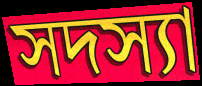
সদস্যা